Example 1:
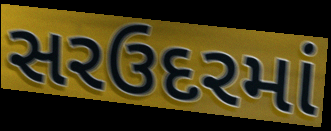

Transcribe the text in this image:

સરઉદરમાં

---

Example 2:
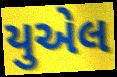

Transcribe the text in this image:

યુએલ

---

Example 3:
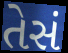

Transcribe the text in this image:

તેસં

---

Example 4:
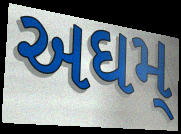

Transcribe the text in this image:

અઘમ્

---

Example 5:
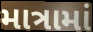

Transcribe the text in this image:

માત્રામાં